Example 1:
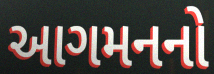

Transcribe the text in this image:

આગમનનો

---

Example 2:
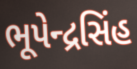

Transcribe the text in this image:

ભૂપેન્દ્રસિંહ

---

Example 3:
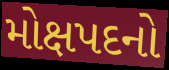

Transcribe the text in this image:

મોક્ષપદનો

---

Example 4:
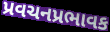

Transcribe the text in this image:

પ્રવચનપ્રભાવક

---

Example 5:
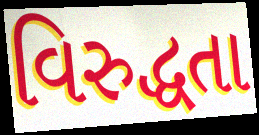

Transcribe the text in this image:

વિરુદ્ધતા